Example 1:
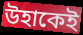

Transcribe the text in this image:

উহাকেই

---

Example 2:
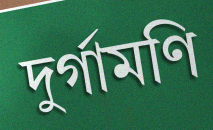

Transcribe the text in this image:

দুর্গামণি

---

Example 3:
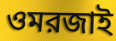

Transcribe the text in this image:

ওমরজাই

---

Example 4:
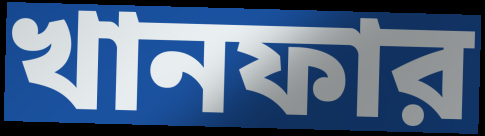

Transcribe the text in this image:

খানফার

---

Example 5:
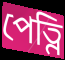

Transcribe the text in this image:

পেত্নি